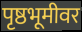
पृष्ठभूमीवर